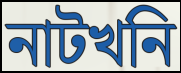
নাটখনি